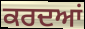
ਕਰਦਆਂ